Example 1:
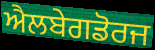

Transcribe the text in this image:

ਐਲਬੇਗਡੋਰਜ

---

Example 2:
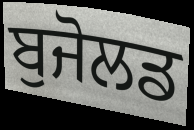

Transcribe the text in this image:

ਬੁਜੋਲਡ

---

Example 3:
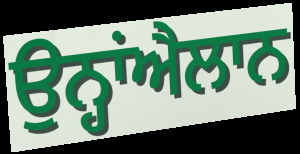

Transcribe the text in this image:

ਉਨ੍ਹਾਂਐਲਾਨ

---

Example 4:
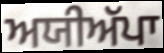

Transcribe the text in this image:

ਅਯੀਅੱਪਾ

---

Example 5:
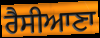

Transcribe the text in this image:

ਰੈਸੀਆਣਾ